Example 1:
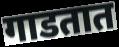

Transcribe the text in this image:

गाडतात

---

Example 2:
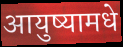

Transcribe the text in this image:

आयुष्यामधे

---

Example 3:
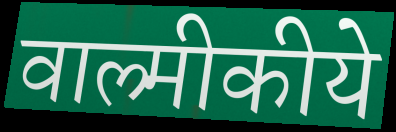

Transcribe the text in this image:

वाल्मीकीये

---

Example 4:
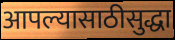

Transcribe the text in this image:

आपल्यासाठीसुद्धा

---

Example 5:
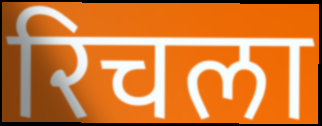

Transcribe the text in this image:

रिचला